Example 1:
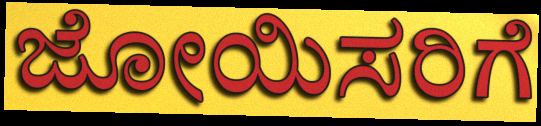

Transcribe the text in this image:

ಜೋಯಿಸರಿಗೆ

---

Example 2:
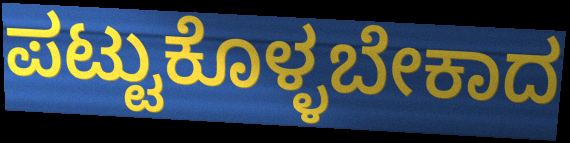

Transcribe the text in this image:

ಪಟ್ಟುಕೊಳ್ಳಬೇಕಾದ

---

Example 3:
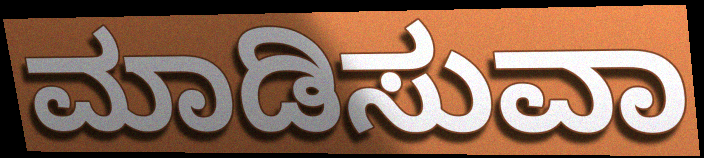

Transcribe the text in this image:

ಮಾಡಿಸುವಾ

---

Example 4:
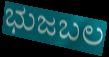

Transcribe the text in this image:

ಭುಜಬಲ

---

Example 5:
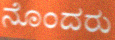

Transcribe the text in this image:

ನೊಂದರು